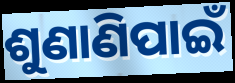
ଶୁଣାଣିପାଇଁ